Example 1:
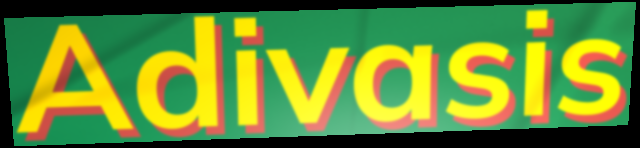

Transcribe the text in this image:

Adivasis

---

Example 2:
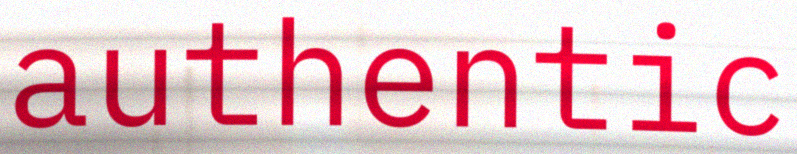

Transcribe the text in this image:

authentic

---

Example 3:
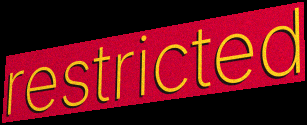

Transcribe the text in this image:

restricted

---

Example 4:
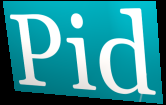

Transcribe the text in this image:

Pid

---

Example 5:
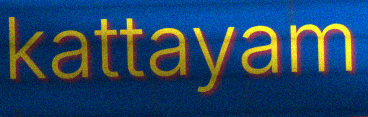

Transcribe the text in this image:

kattayam